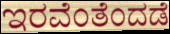
ಇರವೆಂತೆಂದಡೆ